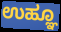
ಉಹ್ಞೂ